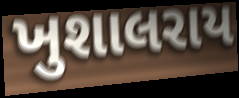
ખુશાલરાય